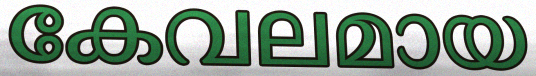
കേവലമായ